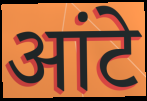
आंटे